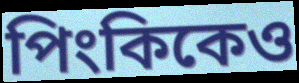
পিংকিকেও